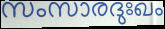
സംസാരദുഃഖം